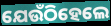
ଯେଉଁଠିହେଲେ